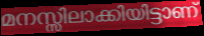
മനസ്സിലാക്കിയിട്ടാണ്